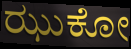
ಝುಕೋ